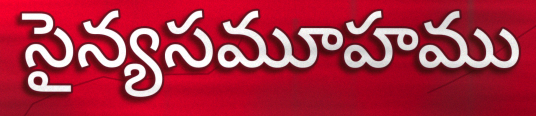
సైన్యసమూహము